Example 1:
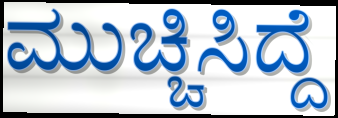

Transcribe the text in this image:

ಮುಚ್ಚಿಸಿದ್ದೆ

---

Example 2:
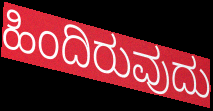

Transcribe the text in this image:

ಹಿಂದಿರುವುದು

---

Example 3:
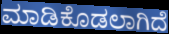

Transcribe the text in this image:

ಮಾಡಿಕೊಡಲಾಗಿದೆ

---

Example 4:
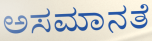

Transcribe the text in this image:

ಅಸಮಾನತೆ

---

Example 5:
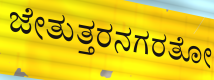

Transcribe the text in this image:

ಜೇತುತ್ತರನಗರತೋ